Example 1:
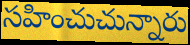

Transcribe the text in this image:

సహించుచున్నారు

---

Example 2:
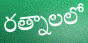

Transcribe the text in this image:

రత్నాలలో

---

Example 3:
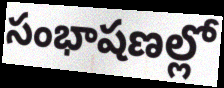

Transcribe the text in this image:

సంభాషణల్లో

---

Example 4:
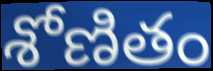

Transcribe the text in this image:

శోణితం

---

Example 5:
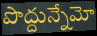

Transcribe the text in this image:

పొద్దున్నేమో